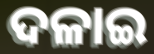
ଦଳାଇ